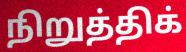
நிறுத்திக்